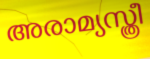
അരാമ്യസ്ത്രീ